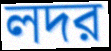
লদর